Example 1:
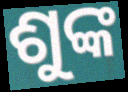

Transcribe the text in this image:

ଶୁଙ୍କ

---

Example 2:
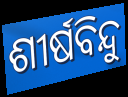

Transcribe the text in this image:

ଶୀର୍ଷବିନ୍ଦୁ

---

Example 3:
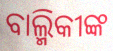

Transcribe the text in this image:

ବାଲ୍ମିକୀଙ୍କ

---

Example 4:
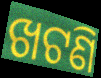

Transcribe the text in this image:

ଖଟଣି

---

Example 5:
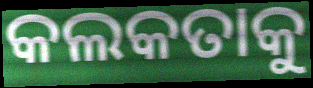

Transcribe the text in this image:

କଲକତାକୁ